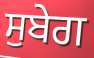
ਸੁਬੇਗ